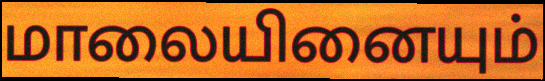
மாலையினையும்